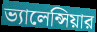
ভ্যালেন্সিয়ার